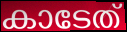
കാടേത്